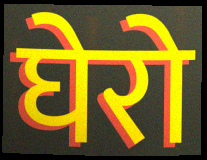
घेरो